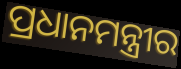
ପ୍ରଧାନମନ୍ତ୍ରୀର